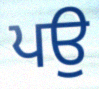
ਪਉ